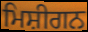
ਮਿਸ਼ੀਗਨ